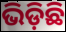
ଭିଡ଼ିଛି